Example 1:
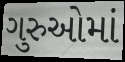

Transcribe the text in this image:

ગુરુઓમાં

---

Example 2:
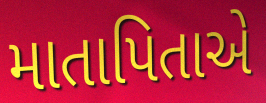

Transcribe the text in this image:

માતાપિતાએ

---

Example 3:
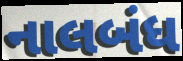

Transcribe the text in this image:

નાલબંધ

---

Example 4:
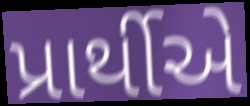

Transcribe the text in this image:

પ્રાર્થીએ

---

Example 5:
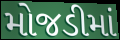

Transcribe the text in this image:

મોજડીમાં